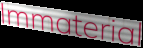
Immaterial